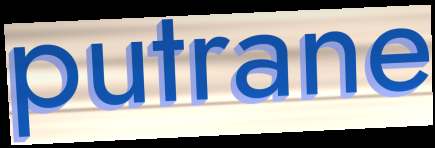
putrane